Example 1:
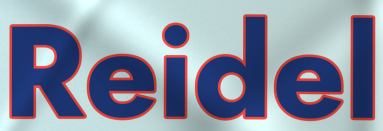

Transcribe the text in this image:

Reidel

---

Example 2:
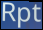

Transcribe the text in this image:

Rpt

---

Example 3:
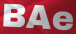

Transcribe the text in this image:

BAe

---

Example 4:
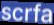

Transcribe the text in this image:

scrfa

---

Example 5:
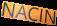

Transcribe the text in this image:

NACIN